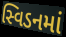
સ્વિડનમાં